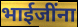
भाईजींना